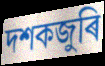
দশকজুৰি